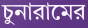
চুনারামের